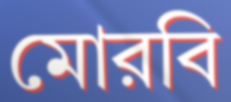
মোরবি